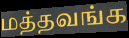
மத்தவங்க